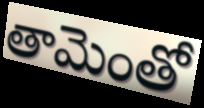
తామెంతో